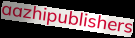
aazhipublishers